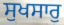
ਸੁਖਸਾਰੁ